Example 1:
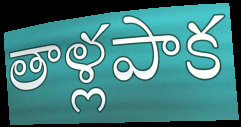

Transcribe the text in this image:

తాళ్లపాక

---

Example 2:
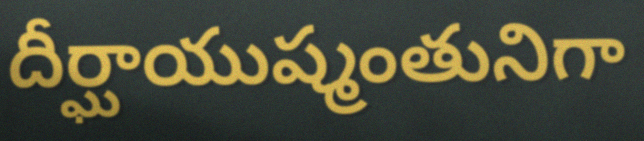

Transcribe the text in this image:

దీర్ఘాయుష్మంతునిగా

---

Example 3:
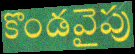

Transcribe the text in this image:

కొండవైపు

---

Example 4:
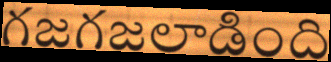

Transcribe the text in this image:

గజగజలాడింది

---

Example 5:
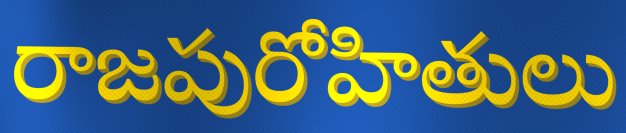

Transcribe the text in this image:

రాజపురోహితులు